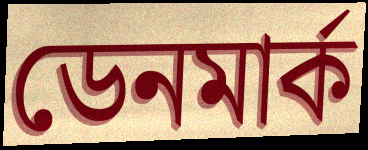
ডেনমাৰ্ক